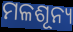
ମଳଶୂନ୍ୟ